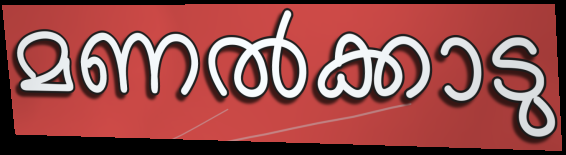
മണൽക്കാടു